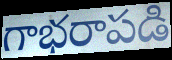
గాభరాపడి